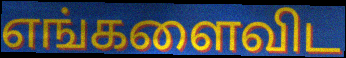
எங்களைவிட